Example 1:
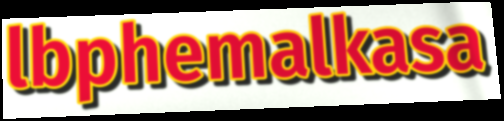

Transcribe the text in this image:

lbphemalkasa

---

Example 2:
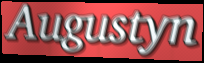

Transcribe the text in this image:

Augustyn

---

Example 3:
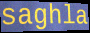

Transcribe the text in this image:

saghla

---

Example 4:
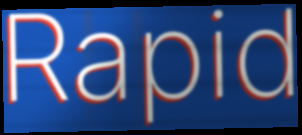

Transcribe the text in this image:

Rapid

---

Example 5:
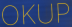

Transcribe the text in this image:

OKUP